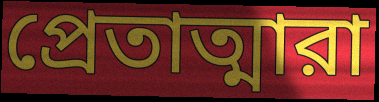
প্রেতাত্মারা